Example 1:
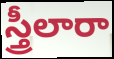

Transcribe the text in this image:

స్త్రీలారా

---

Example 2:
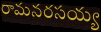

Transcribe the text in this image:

రామనరసయ్య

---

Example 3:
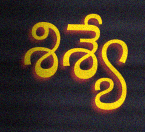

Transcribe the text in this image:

శిశ్యే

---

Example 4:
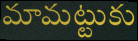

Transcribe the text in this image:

మామట్టుకు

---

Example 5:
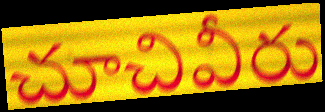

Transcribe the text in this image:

చూచివీరు